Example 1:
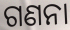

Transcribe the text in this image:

ଗଣନା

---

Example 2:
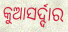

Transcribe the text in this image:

କୁଆସର୍ଦ୍ଦାର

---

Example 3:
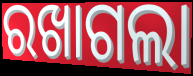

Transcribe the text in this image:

ରଖାଗଲା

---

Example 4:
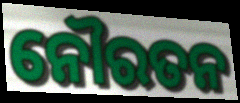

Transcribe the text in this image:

ନୌରତନ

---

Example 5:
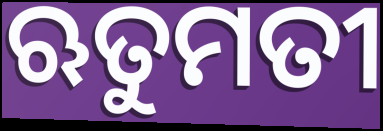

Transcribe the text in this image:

ଋତୁମତୀ